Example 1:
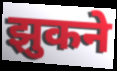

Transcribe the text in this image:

झुकने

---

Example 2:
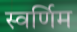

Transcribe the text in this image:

स्वर्णिम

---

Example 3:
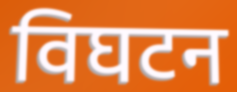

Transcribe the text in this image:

विघटन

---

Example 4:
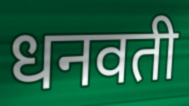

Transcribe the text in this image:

धनवती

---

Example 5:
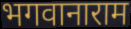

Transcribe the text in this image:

भगवानाराम